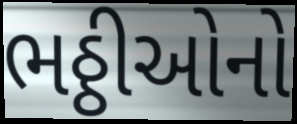
ભઠ્ઠીઓનો